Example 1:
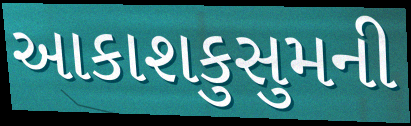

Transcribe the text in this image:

આકાશકુસુમની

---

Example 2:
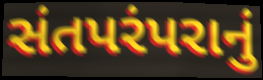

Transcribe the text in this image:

સંતપરંપરાનું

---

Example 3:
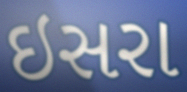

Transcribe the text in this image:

ઇસરા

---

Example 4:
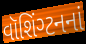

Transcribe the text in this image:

વૉશિંગ્ટનનાં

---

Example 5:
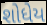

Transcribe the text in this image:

શોધેય